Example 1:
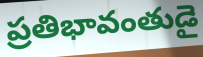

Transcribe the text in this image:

ప్రతిభావంతుడై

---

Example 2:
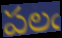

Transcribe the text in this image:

పలఁ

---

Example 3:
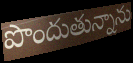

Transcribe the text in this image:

పొందుతున్నాను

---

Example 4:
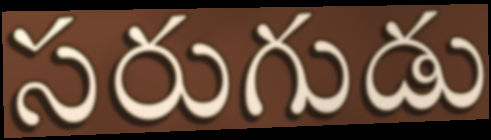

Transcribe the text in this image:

సరుగుడు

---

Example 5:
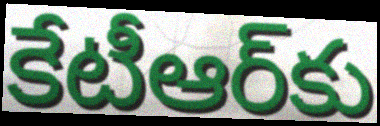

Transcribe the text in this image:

కేటీఆర్‌కు